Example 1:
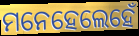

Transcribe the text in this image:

ମନେହେଲେହେଁ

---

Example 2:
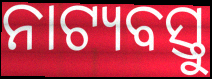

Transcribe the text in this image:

ନାଟ୍ୟବସ୍ତୁ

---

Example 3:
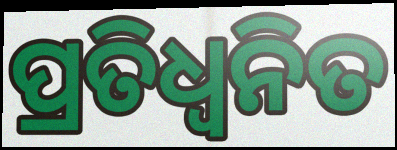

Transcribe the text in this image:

ପ୍ରତିଧ୍ଵନିତ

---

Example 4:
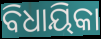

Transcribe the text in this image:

ବିଧାୟିକା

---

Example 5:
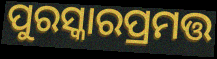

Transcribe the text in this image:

ପୁରସ୍କାରପ୍ରମତ୍ତ